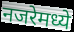
नजरेमध्ये